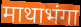
माथाभंगा